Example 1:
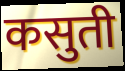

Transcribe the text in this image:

कसुती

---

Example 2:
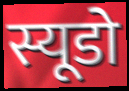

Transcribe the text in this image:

स्यूडो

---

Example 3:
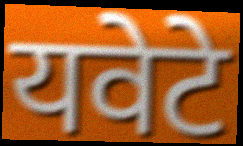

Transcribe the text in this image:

यवेटे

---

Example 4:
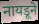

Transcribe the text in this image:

नायडूने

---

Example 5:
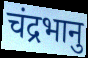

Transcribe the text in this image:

चंद्रभानु